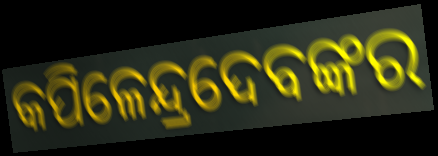
କପିଳେନ୍ଦ୍ରଦେବଙ୍କର